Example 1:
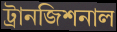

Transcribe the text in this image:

ট্রানজিশনাল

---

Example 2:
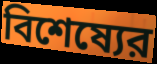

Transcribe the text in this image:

বিশেষ্যের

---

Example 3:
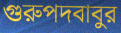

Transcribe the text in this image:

গুরুপদবাবুর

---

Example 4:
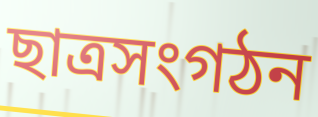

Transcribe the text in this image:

ছাত্রসংগঠন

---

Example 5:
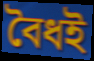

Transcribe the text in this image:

বৈধই